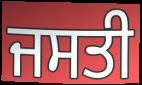
ਜਸਤੀ